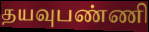
தயவுபண்ணி